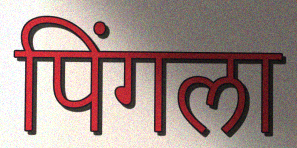
पिंगला